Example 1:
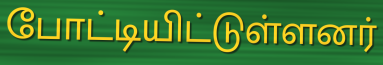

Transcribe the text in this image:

போட்டியிட்டுள்ளனர்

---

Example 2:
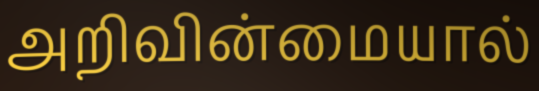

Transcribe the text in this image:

அறிவின்மையால்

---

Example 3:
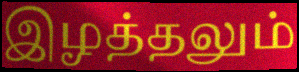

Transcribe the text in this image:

இழத்தலும்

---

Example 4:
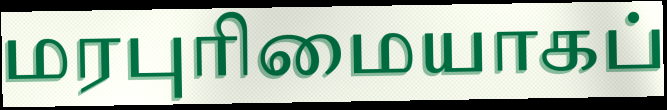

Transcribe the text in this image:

மரபுரிமையாகப்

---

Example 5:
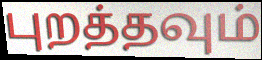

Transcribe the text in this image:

புறத்தவும்